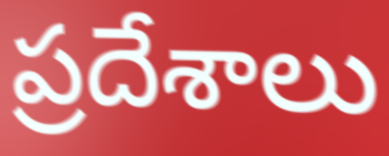
ప్రదేశాలు